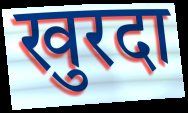
खुरदा